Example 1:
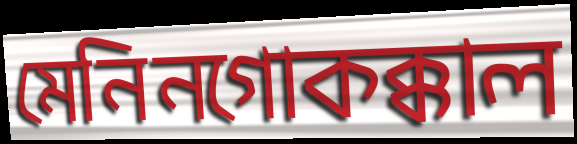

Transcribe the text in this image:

মেনিনগোকক্কাল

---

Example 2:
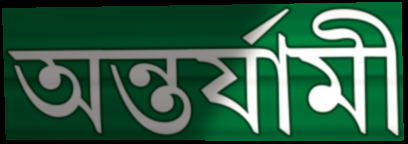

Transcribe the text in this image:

অন্তর্যামী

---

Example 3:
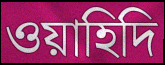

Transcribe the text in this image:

ওয়াহিদি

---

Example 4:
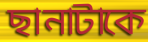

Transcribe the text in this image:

ছানাটাকে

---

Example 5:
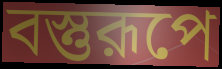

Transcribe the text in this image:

বস্তুরূপে